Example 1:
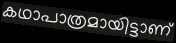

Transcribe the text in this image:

കഥാപാത്രമായിട്ടാണ്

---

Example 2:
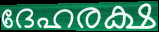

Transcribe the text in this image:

ദേഹരക്ഷ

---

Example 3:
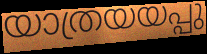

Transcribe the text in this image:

യാത്രയയപ്പു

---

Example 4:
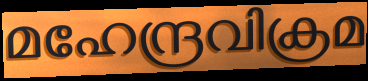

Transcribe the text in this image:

മഹേന്ദ്രവിക്രമ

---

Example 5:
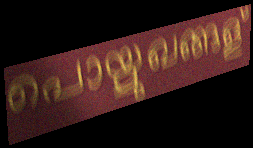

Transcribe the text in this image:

പൊയ്മുഖങ്ങള്